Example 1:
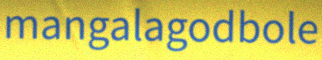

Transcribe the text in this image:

mangalagodbole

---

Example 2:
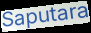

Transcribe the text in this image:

Saputara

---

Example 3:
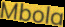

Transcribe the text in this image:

Mbola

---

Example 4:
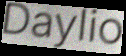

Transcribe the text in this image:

Daylio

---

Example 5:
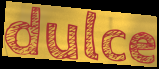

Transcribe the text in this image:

dulce